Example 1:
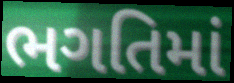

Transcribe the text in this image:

ભગતિમાં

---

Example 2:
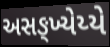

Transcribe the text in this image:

અસઙ્ખ્યેય્યે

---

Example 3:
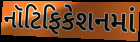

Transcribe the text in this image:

નૉટિફિકેશનમાં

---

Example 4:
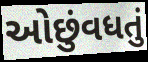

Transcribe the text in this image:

ઓછુંવધતું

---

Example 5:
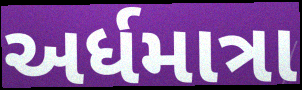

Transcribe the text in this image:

અર્ધમાત્રા